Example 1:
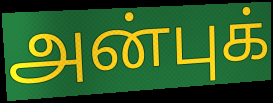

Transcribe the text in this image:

அன்புக்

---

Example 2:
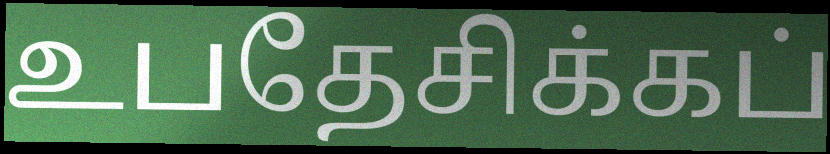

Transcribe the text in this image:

உபதேசிக்கப்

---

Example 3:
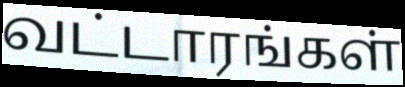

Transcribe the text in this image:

வட்டாரங்கள்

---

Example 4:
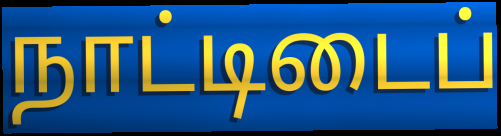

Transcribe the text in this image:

நாட்டிடைப்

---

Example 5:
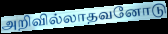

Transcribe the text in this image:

அறிவில்லாதவனோடு